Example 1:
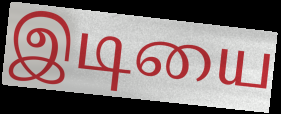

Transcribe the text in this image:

இடியை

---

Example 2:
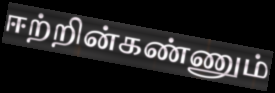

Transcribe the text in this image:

ஈற்றின்கண்ணும்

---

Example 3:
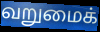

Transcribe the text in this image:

வறுமைக்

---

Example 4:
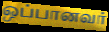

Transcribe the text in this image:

ஒப்பானவர்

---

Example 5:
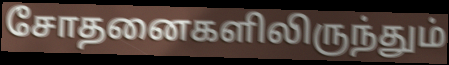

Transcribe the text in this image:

சோதனைகளிலிருந்தும்